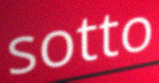
sotto